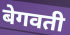
बेगवती